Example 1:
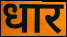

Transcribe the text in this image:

धार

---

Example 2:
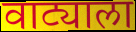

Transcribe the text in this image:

वाट्याला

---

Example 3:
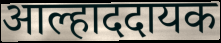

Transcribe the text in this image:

आल्हाददायक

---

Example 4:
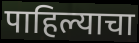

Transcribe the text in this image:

पाहिल्याचा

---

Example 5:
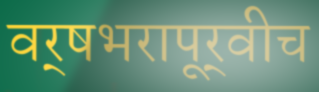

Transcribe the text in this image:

वर्षभरापूर्वीच